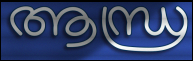
ആന്ധ്ര